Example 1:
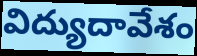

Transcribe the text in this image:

విద్యుదావేశం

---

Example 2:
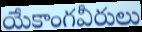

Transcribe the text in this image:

యేకాంగవీరులు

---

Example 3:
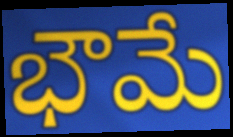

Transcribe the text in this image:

భౌమే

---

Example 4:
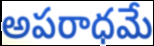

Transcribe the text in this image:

అపరాధమే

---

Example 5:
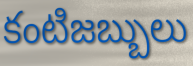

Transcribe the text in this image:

కంటిజబ్బులు